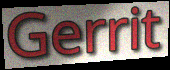
Gerrit